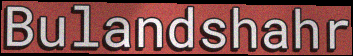
Bulandshahr